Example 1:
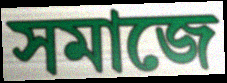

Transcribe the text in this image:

সমাজে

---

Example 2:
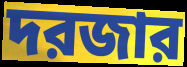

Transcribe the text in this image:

দরজার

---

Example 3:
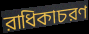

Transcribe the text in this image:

রাধিকাচরণ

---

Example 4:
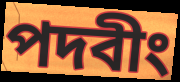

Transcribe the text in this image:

পদবীং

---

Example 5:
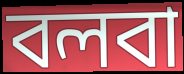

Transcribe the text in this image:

বলবা